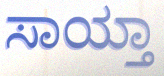
ಸಾಯ್ತಾ